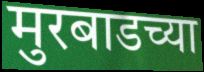
मुरबाडच्या